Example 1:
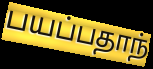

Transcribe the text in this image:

பயப்பதாந்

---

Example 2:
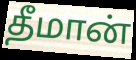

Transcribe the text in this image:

தீமான்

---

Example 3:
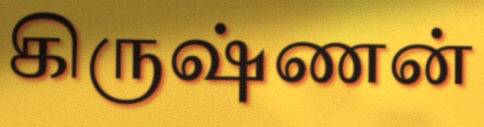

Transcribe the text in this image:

கிருஷ்ணன்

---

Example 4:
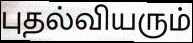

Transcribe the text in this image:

புதல்வியரும்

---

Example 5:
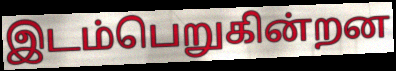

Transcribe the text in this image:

இடம்பெறுகின்றன